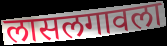
लासलगावला